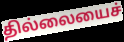
தில்லையைச்